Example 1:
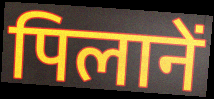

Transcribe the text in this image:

पिलानें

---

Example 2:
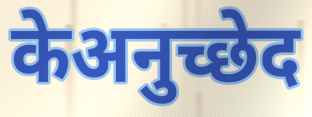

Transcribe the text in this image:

केअनुच्छेद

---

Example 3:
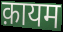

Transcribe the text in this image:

क़ायम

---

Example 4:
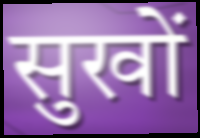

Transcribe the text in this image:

सुखों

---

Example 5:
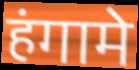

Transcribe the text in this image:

हंगामे